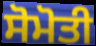
ਸੋਮੋਤੀ